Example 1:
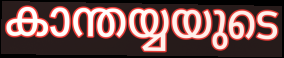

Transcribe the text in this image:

കാന്തയ്യയുടെ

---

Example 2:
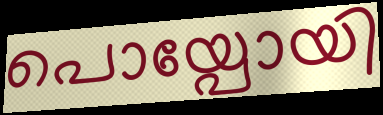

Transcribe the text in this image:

പൊയ്പോയി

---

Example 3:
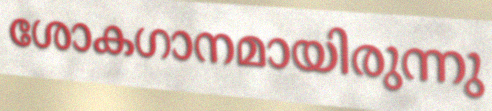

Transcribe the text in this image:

ശോകഗാനമായിരുന്നു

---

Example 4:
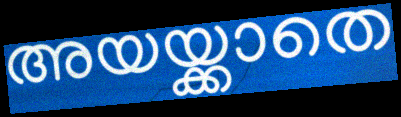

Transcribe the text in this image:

അയയ്ക്കാതെ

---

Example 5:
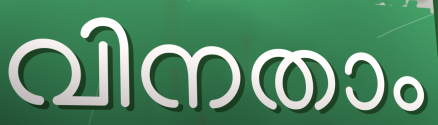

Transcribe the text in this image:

വിനതാം